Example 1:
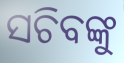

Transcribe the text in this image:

ସଚିବଙ୍କୁ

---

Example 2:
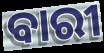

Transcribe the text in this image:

ବାରୀ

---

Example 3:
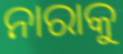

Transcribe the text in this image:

ନାରାକୁ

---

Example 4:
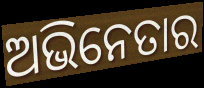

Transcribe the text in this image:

ଅଭିନେତାର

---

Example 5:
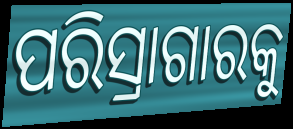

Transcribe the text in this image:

ପରିସ୍ରାଗାରକୁ